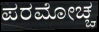
ಪರಮೋಚ್ಚ